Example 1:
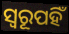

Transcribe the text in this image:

ସ୍ୱରୂପହିଁ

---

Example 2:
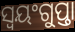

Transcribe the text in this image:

ସ୍ୱୟଂଗୁପ୍ତା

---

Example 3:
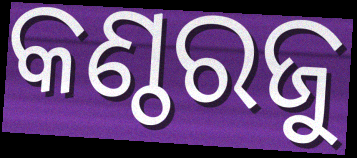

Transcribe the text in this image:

କଣ୍ଠରଜୁ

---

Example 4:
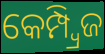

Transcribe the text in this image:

କେମ୍ପ୍ୱ୍ରିଜ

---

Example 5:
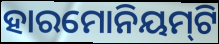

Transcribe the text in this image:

ହାରମୋନିୟମ୍‍ଟି